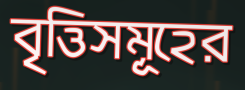
বৃত্তিসমূহের